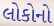
લોકોનો